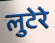
लुटेरे